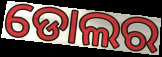
ଡୋଲର